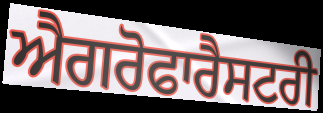
ਐਗਰੋਫਾਰੈਸਟਰੀ